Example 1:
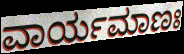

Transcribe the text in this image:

ವಾರ್ಯಮಾಣಃ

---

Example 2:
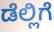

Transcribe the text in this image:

ಡೆಲ್ಲಿಗೆ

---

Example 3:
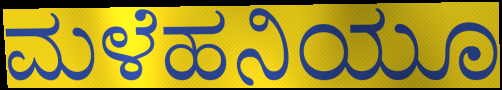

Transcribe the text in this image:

ಮಳೆಹನಿಯೂ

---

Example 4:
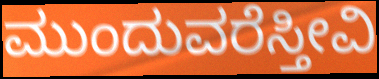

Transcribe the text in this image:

ಮುಂದುವರೆಸ್ತೀವಿ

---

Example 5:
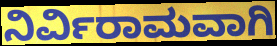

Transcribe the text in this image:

ನಿರ್ವಿರಾಮವಾಗಿ